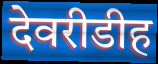
देवरीडीह